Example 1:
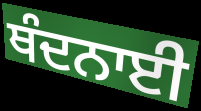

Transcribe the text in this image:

ਥੰਦਨਾਈ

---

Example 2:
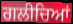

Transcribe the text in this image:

ਗਲੀਚਿਆਂ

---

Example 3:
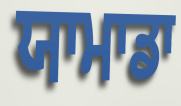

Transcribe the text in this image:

ਯਾਮਾਡਾ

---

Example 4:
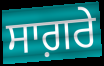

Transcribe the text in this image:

ਸਾਗ਼ਰੇ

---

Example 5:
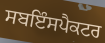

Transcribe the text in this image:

ਸਬਇੰਸਪੈਕਟਰ